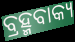
ବ୍ରହ୍ମବାକ୍ୟ